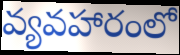
వ్యవహారంలో